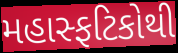
મહાસ્ફટિકોથી